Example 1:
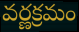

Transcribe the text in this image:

వర్ణక్రమం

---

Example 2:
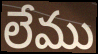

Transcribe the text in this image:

లేము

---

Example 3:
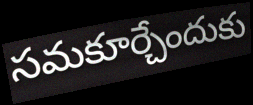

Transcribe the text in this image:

సమకూర్చేందుకు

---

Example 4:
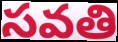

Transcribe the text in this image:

సవతి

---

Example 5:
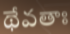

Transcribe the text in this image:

థేవతాః